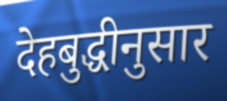
देहबुद्धीनुसार